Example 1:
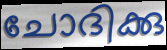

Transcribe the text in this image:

ചോദിക്കു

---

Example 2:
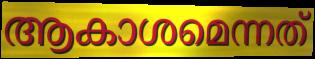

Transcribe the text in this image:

ആകാശമെന്നത്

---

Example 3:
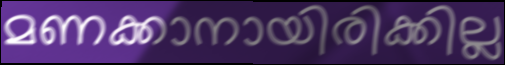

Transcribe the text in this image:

മണക്കാനായിരിക്കില്ല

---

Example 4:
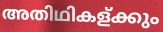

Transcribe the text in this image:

അതിഥികള്ക്കും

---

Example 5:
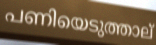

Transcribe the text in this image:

പണിയെടുത്താല്